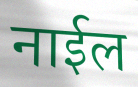
नाईल